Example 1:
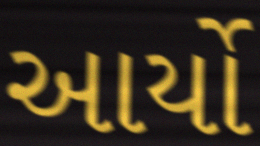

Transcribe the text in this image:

આર્યો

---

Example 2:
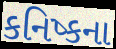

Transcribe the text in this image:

કનિષ્કના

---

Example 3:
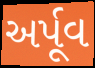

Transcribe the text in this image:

અર્પૂવ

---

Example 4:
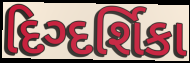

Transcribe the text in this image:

દિગ્દર્શિકા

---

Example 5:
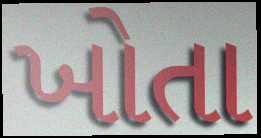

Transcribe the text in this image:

ખોતા